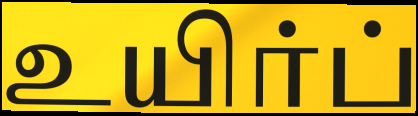
உயிர்ப்